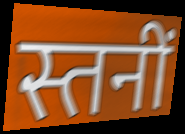
स्तनीं